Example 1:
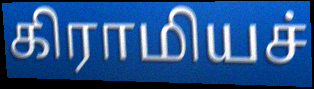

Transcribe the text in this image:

கிராமியச்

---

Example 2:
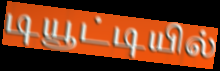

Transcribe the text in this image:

டியூட்டியில்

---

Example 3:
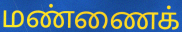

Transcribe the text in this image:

மண்ணைக்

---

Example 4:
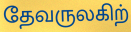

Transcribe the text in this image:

தேவருலகிற்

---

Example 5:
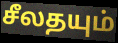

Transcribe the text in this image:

சீலதயும்